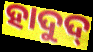
ହାଦୁଦ୍